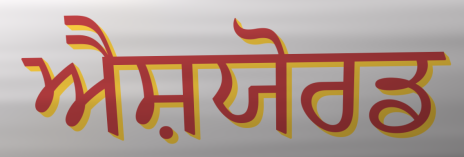
ਐਸ਼ਯੋਰਡ